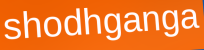
shodhganga